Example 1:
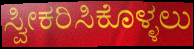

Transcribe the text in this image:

ಸ್ವೀಕರಿಸಿಕೊಳ್ಳಲು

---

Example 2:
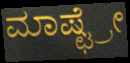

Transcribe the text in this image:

ಮಾಷ್ಟ್ರೇ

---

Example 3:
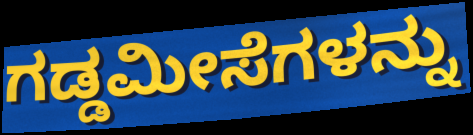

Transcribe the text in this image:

ಗಡ್ಡಮೀಸೆಗಳನ್ನು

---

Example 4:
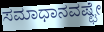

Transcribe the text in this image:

ಸಮಾಧಾನವಷ್ಟೇ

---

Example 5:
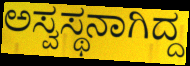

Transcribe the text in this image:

ಅಸ್ವಸ್ಥನಾಗಿದ್ದ